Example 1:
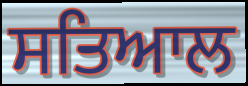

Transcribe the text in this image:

ਸਤਿਆਲ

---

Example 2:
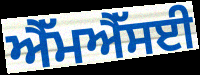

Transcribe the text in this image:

ਐੱਮਐੱਸਈ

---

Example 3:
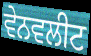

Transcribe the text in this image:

ਵੇਨਵਲੀਟ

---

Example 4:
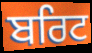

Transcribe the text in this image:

ਬਰਿਟ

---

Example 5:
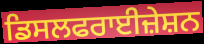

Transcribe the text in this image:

ਡਿਸਲਫਰਾਈਜ਼ੇਸ਼ਨ